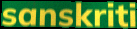
sanskriti